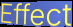
Effect